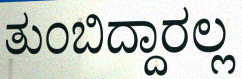
ತುಂಬಿದ್ದಾರಲ್ಲ